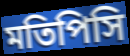
মতিপিসি